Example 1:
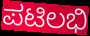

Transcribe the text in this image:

ಪಟಿಲಭಿ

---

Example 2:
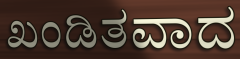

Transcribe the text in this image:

ಖಂಡಿತವಾದ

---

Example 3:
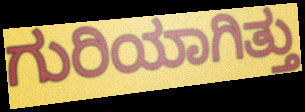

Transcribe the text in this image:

ಗುರಿಯಾಗಿತ್ತು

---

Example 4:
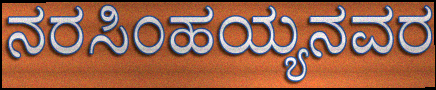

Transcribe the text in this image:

ನರಸಿಂಹಯ್ಯನವರ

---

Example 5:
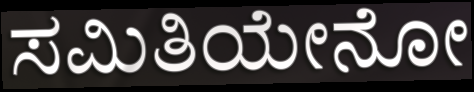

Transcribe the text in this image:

ಸಮಿತಿಯೇನೋ